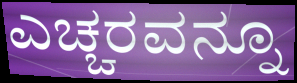
ಎಚ್ಚರವನ್ನೂ